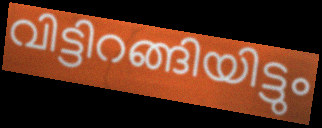
വിട്ടിറങ്ങിയിട്ടും